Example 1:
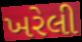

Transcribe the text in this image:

ખરેલી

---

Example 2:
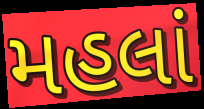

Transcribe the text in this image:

મહલાં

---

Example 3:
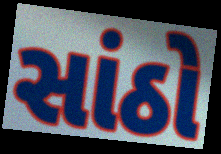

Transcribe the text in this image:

સાંઠો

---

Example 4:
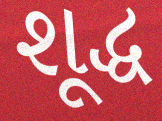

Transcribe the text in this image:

શૂદ્ધ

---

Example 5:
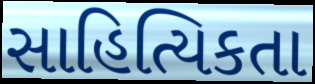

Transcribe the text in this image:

સાહિત્યિકતા